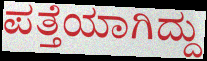
ಪತ್ತೆಯಾಗಿದ್ದು